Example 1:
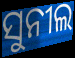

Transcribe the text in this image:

ସୁନୀଲ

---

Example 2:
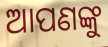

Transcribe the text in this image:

ଆପଣଙ୍କୁ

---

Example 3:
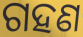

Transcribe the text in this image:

ଗହଣ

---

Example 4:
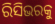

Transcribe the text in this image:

ରିସିଭରକୁ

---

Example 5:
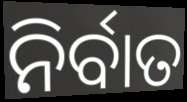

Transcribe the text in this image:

ନିର୍ବାତ